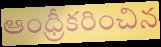
ఆంధ్రీకరించిన